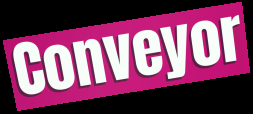
Conveyor